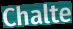
Chalte